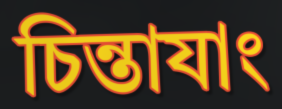
চিন্তাযাং